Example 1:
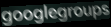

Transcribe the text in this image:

googlegroups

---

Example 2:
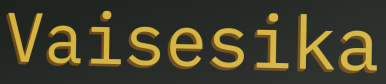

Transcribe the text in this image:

Vaisesika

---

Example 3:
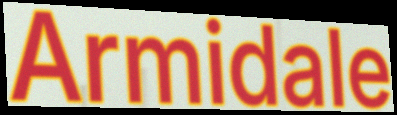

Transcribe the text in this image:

Armidale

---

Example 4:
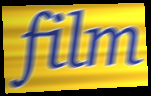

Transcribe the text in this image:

film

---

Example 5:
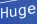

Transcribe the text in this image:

Huge